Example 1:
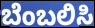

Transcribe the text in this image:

ಬೆಂಬಲಿಸಿ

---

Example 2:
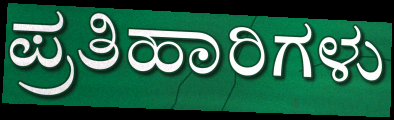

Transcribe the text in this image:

ಪ್ರತಿಹಾರಿಗಳು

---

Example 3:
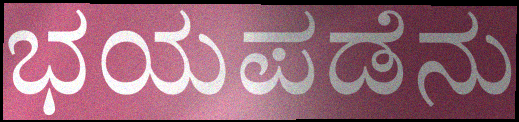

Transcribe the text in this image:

ಭಯಪಡೆನು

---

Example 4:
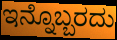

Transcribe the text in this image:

ಇನ್ನೊಬ್ಬರದು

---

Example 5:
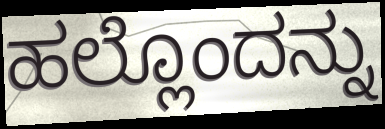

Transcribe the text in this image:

ಹಲ್ಲೊಂದನ್ನು